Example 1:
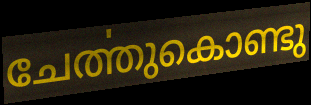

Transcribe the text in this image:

ചേൎത്തുകൊണ്ടു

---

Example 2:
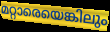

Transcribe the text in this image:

മറ്റാരെയെങ്കിലും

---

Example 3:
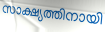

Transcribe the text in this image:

സാക്ഷ്യത്തിനായി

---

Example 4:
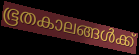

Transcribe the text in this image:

ഭൂതകാലങ്ങൾക്ക്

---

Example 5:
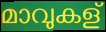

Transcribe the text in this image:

മാവുകള്